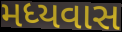
મધ્યવાસ